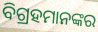
ବିଗ୍ରହମାନଙ୍କର